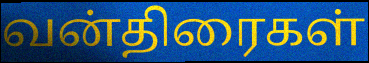
வன்திரைகள்